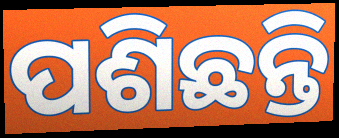
ପଶିଛନ୍ତି